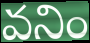
వనిం